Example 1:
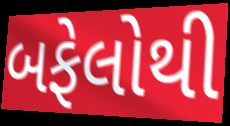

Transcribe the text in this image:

બફેલોથી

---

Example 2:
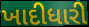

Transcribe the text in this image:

ખાદીધારી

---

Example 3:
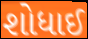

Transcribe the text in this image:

શોધાઈ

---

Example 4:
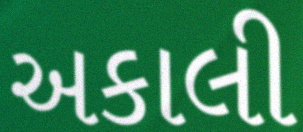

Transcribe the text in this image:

અકાલી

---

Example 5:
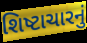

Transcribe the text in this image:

શિષ્ટાચારનું